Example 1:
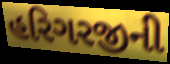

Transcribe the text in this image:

હરિગરજીની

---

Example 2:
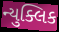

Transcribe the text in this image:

ન્યુક્લિક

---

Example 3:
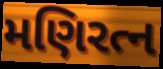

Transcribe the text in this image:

મણિરત્ન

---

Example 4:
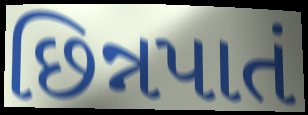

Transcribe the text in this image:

છિન્નપાતં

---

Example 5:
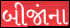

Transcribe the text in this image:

બીજાંના